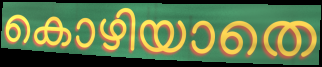
കൊഴിയാതെ